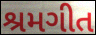
શ્રમગીત